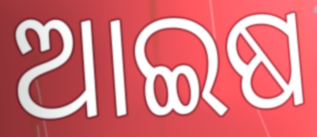
ଆଇଷ